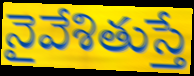
నైవేశితుస్తే